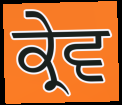
ਕ੍ਰੇਵ